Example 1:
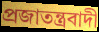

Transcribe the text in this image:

প্রজাতন্ত্রবাদী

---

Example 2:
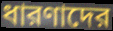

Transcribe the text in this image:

ধারণাদের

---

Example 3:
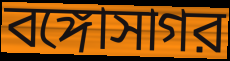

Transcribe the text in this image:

বঙ্গোসাগর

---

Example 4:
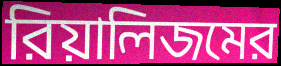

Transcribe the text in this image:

রিয়ালিজমের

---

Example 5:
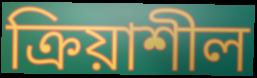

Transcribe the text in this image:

ক্রিয়াশীল